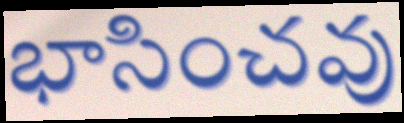
భాసించవు